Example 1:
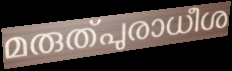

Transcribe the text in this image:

മരുത്പുരാധീശ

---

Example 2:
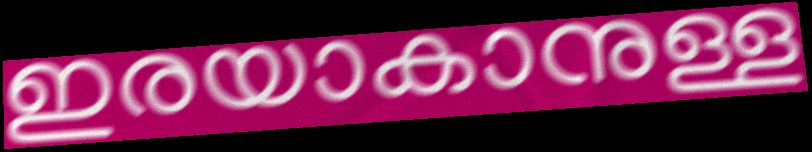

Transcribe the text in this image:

ഇരയാകാനുള്ള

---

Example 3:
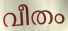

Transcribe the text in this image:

വീതം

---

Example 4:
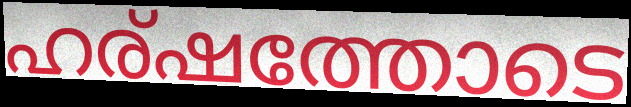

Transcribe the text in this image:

ഹര്ഷത്തോടെ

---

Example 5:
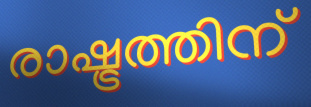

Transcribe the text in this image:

രാഷ്ട്രത്തിന്